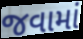
જવામાં